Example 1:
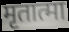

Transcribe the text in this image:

मृतात्मा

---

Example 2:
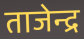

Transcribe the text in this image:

ताजेन्द्र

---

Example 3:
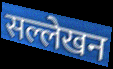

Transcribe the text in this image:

सल्लेखन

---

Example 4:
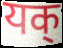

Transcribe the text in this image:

यक्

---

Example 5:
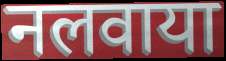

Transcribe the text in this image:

नलवाया